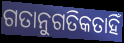
ଗତାନୁଗତିକତାହିଁ